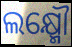
ଲକ୍ଷ୍ମୌ